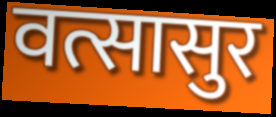
वत्सासुर